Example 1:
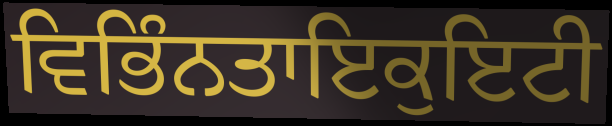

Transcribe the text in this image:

ਵਿਭਿੰਨਤਾਇਕੁਇਟੀ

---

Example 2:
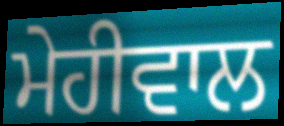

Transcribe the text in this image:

ਮੇਹੀਵਾਲ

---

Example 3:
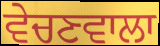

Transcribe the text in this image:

ਵੇਚਣਵਾਲਾ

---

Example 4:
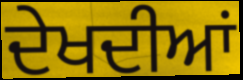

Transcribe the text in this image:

ਦੇਖਦੀਆਂ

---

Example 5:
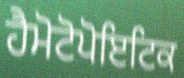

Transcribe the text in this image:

ਹੈਮੋਟੋਪੋਇਟਿਕ